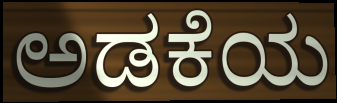
ಅಡಕೆಯ